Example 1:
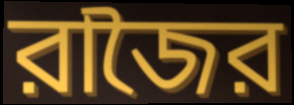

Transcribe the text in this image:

রাজৈর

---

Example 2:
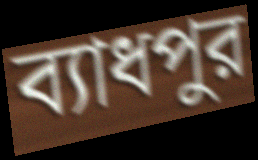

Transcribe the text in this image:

ব্যাধপুর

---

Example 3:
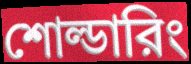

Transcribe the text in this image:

শোল্ডারিং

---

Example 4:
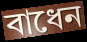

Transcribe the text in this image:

বাধেন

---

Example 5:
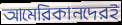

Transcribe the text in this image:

আমেরিকানদেরই